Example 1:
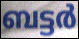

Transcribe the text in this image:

ബട്ടർ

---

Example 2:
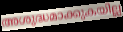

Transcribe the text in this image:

അശുദ്ധമാക്കുകയില്ല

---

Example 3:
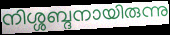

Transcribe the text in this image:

നിശ്ശബ്ദനായിരുന്നു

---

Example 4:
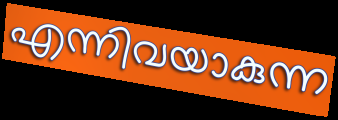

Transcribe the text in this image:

എന്നിവയാകുന്ന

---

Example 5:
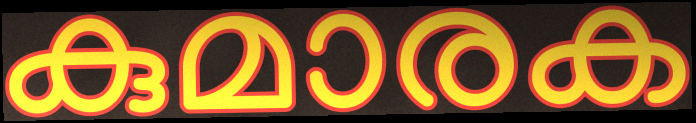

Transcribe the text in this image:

കുമാരക